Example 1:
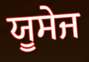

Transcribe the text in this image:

ਯੂਸੇਜ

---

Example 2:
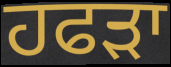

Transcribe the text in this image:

ਹਫੜਾ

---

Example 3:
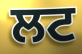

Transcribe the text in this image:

ਲਟ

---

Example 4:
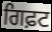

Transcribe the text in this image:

ਗਿਫ਼ਟ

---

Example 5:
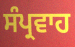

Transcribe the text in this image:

ਸੰਪ੍ਰਵਾਹ